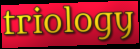
triology